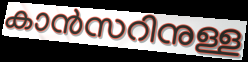
കാൻസറിനുള്ള